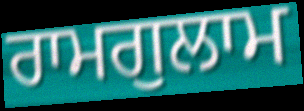
ਰਾਮਗੁਲਾਮ